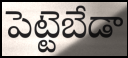
పెట్టెబేడా